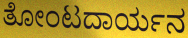
ತೋಂಟದಾರ್ಯನ